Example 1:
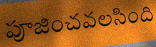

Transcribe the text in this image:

పూజించవలసింది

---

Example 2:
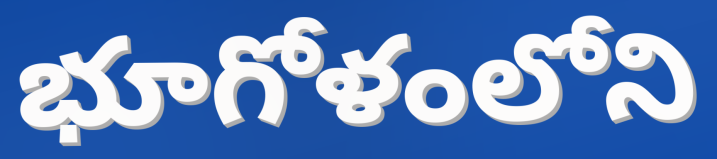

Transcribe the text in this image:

భూగోళంలోని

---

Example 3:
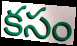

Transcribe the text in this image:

కసం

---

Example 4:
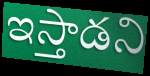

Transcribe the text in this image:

ఇస్తాడని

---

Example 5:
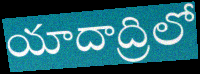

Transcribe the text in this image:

యాదాద్రిలో